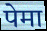
पेमा